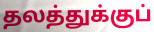
தலத்துக்குப்